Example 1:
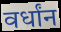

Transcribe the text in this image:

वर्धांन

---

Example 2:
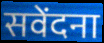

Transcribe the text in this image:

सवेंदना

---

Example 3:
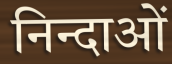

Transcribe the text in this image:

निन्दाओं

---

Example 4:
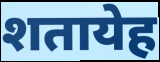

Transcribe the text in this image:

शतायेह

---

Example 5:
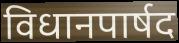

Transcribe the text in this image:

विधानपार्षद